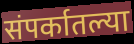
संपर्कातल्या